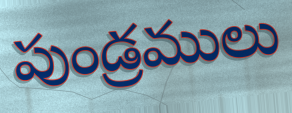
పుండ్రములు